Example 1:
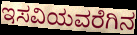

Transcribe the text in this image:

ಇಸವಿಯವರೆಗಿನ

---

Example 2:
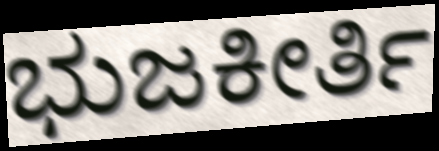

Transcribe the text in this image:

ಭುಜಕೀರ್ತಿ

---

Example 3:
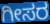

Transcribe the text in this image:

ಗೀಸರ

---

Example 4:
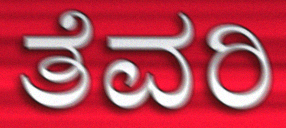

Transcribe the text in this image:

ತೆವರಿ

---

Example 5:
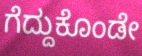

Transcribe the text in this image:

ಗೆದ್ದುಕೊಂಡೇ